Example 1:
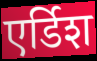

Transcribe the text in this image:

एर्डिश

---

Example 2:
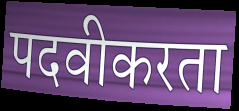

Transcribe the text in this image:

पदवीकरता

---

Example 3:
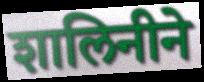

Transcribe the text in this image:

शालिनीने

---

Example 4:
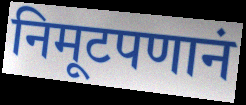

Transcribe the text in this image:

निमूटपणानं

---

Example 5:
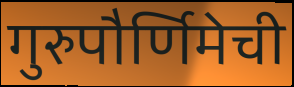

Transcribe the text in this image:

गुरुपौर्णिमेची